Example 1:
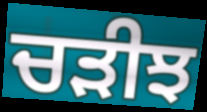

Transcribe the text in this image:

ਚੜੀਝ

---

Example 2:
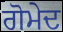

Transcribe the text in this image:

ਗੋਮੇਦ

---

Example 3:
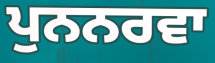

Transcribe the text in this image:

ਪੁਨਨਰਵਾ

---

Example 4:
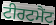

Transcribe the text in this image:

ਟੀਰਟਮੈਂਟ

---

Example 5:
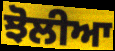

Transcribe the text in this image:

ਝੋਲੀਆ